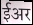
ईअर